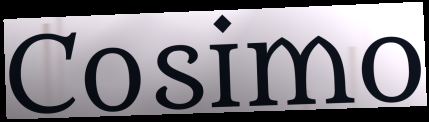
Cosimo